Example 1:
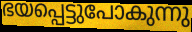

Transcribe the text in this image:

ഭയപ്പെട്ടുപോകുന്നു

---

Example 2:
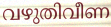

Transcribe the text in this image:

വഴുതിവീണ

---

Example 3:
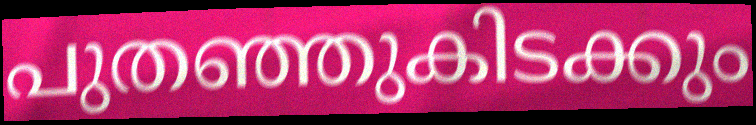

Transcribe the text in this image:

പുതഞ്ഞുകിടക്കും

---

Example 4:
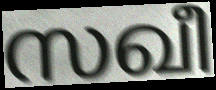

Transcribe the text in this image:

സഖീ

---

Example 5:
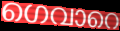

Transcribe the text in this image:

ഗെവാറെ